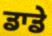
ਡਾਡੇ